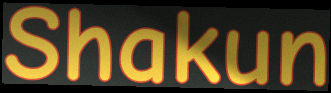
Shakun